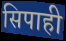
सिपाही